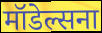
मॉडेल्सना